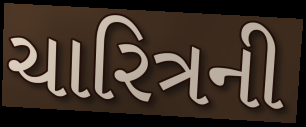
ચારિત્રની